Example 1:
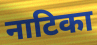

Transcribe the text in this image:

नाटिका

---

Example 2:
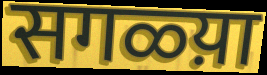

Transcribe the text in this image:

सगळ्य़ा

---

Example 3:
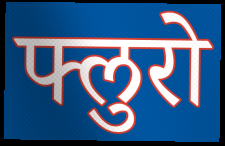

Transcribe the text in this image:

फ्लुरो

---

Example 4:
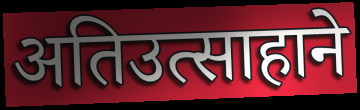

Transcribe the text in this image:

अतिउत्साहाने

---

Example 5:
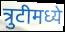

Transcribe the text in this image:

त्रुटीमध्ये